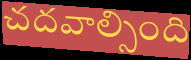
చదవాల్సింది